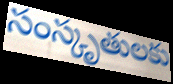
సంస్కృతులకు